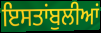
ਇਸਤਾਂਬੁਲੀਆਂ